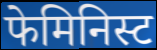
फेमिनिस्ट